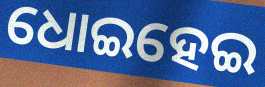
ଧୋଇହେଇ